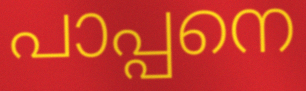
പാപ്പനെ